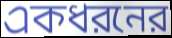
একধরনের